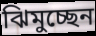
ঝিমুচ্ছেন